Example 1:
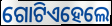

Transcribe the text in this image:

ଗୋଟିଏହେଲେ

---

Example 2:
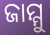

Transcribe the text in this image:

ଜାମ୍ମୁ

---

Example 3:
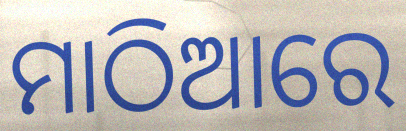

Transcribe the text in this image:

ମାଠିଆରେ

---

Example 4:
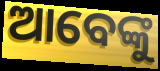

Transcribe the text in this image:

ଆବେଙ୍କୁ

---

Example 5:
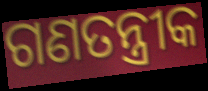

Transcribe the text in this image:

ଗଣତନ୍ତ୍ରୀକ